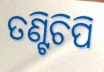
ତଣ୍ଟିଚିପି